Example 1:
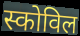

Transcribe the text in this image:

स्कोविल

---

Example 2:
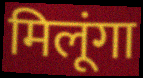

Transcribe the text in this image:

मिलूंगा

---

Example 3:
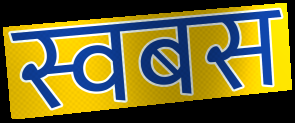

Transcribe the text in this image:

स्वबस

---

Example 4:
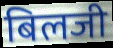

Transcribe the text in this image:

बिलजी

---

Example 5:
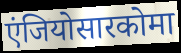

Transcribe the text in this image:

एंजियोसारकोमा